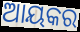
ଆୟକର